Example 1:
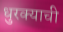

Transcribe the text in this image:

धुरक्याची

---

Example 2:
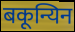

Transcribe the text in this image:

बकून्यिन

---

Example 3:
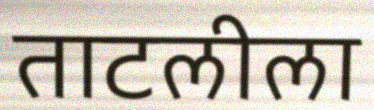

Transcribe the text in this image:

ताटलीला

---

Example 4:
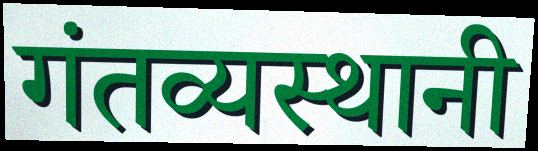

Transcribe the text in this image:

गंतव्यस्थानी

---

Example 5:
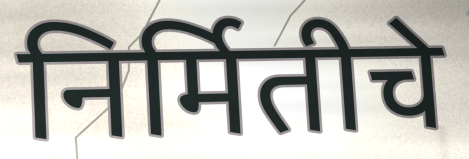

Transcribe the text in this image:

निर्मितीचे